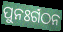
ପୁନଃର୍ଗଠନ